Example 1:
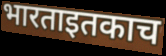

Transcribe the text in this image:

भारताइतकाच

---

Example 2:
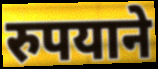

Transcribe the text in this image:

रुपयाने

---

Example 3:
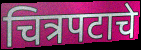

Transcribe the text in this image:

चित्रपटाचे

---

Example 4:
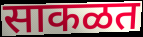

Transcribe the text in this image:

साकळत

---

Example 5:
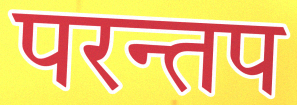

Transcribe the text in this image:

परन्तप